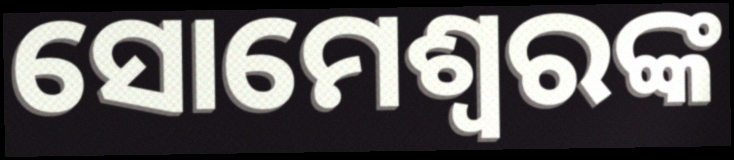
ସୋମେଶ୍ୱରଙ୍କ